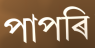
পাপৰি